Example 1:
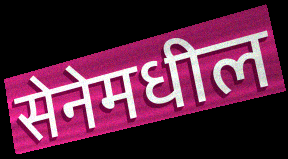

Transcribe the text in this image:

सेनेमधील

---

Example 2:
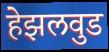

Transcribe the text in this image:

हेझलवुड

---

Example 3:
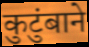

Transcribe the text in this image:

कुटुंबाने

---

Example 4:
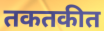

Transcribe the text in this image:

तकतकीत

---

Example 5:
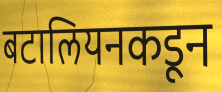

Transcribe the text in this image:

बटालियनकडून